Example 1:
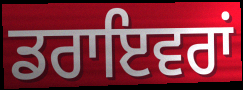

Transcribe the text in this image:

ਡਰਾਇਵਰਾਂ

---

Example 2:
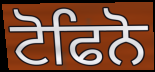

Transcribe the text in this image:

ਟੋਫਿਨੋ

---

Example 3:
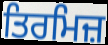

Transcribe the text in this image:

ਤਿਰਮਿਜ਼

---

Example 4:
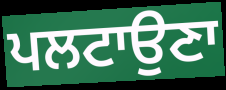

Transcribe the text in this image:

ਪਲਟਾਉਣਾ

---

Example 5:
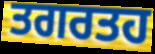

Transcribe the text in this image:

ਤਗਰਤਹ